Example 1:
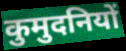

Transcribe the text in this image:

कुमुदनियों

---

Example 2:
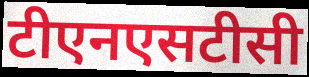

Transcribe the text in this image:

टीएनएसटीसी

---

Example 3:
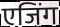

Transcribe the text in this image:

एजिंग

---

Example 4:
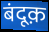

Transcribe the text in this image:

बंदूक़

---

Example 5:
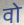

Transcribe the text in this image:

वो